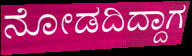
ನೋಡದಿದ್ದಾಗ